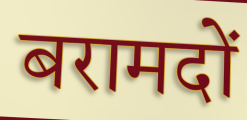
बरामदों